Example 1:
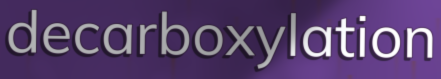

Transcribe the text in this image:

decarboxylation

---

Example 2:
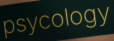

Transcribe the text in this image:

psycology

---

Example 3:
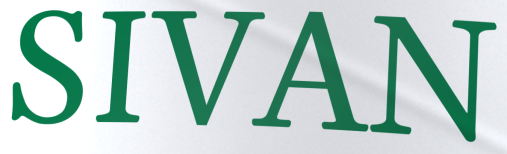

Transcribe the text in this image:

SIVAN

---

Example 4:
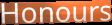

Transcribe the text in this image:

Honours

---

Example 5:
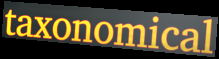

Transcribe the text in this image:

taxonomical